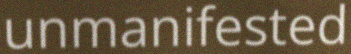
unmanifested